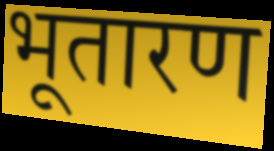
भूतारण